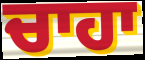
ਚਾਹਾ